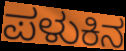
ಪಳುಕಿನ